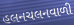
હલનચલનવાળી